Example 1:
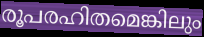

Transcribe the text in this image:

രൂപരഹിതമെങ്കിലും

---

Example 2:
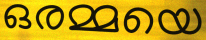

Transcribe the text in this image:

ഒരമ്മയെ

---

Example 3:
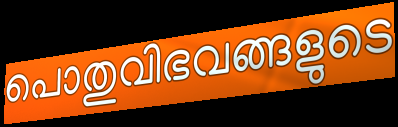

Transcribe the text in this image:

പൊതുവിഭവങ്ങളുടെ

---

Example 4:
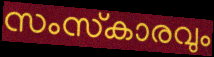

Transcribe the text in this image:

സംസ്‌കാരവും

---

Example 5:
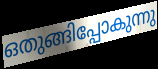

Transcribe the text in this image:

ഒതുങ്ങിപ്പോകുന്നു